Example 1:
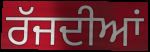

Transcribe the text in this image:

ਰੱਜਦੀਆਂ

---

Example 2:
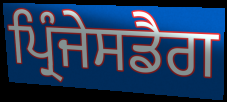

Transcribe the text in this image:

ਪ੍ਰਿੰਜੇਸਡੈਗ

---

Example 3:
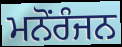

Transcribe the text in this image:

ਮਨੋਂਰੰਜਨ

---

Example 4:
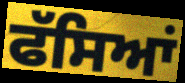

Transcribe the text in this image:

ਫੱਸਿਆਂ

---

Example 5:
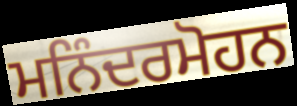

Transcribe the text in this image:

ਮਨਿੰਦਰਮੋਹਨ